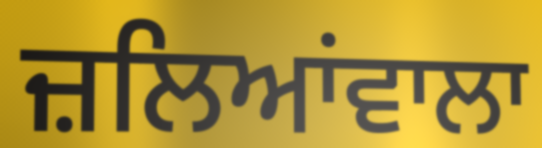
ਜ਼ਲਿਆਂਵਾਲਾ